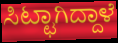
ಸಿಟ್ಟಾಗಿದ್ದಾಳೆ